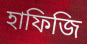
হাফিজি